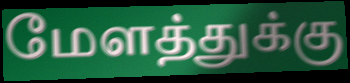
மேளத்துக்கு